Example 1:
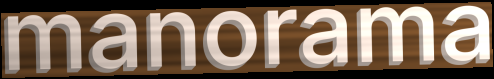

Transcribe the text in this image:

manorama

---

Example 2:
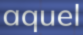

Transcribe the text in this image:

aquel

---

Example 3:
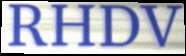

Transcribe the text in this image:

RHDV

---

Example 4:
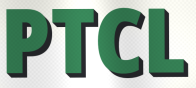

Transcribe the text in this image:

PTCL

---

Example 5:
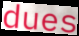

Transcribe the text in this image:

dues